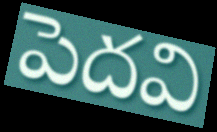
పెదవి